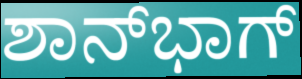
ಶಾನ್‍ಭಾಗ್